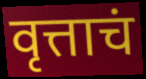
वृत्ताचं